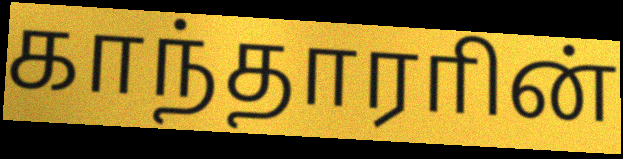
காந்தாரரின்